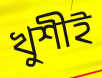
খুশীই